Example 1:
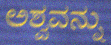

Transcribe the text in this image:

ಅಶ್ವವನ್ನು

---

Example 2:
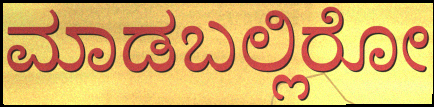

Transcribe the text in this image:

ಮಾಡಬಲ್ಲಿರೋ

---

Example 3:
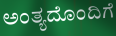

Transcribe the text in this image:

ಅಂತ್ಯದೊಂದಿಗೆ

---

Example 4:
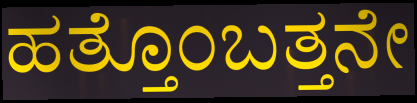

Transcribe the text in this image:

ಹತ್ತೊಂಬತ್ತನೇ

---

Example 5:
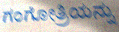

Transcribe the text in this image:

ಗಂಗೋತ್ರಿಯನ್ನು